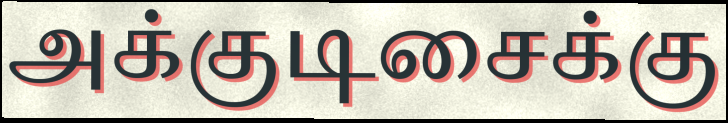
அக்குடிசைக்கு